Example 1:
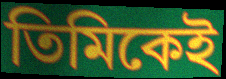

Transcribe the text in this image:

তিমিকেই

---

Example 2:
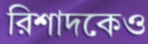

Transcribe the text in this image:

রিশাদকেও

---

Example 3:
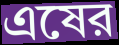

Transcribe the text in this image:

এষের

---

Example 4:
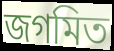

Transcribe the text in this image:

জগমিত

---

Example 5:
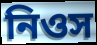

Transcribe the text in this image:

নিওস